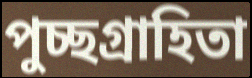
পুচ্ছগ্রাহিতা